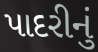
પાદરીનું